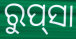
ରୁପ୍‍ସା